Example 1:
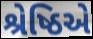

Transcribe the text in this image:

શ્રેષ્ઠિએ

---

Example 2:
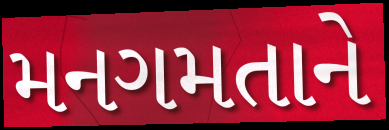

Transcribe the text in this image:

મનગમતાને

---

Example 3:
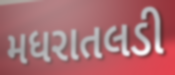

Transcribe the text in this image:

મધરાતલડી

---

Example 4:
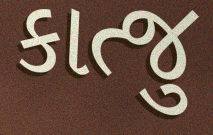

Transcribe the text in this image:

કાત્જુ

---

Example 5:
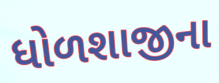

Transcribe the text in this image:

ધોળશાજીના